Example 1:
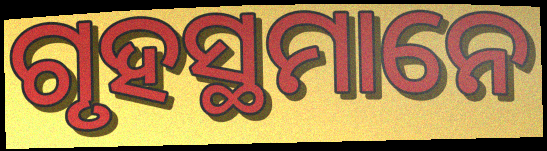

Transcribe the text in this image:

ଗୃହସ୍ଥମାନେ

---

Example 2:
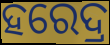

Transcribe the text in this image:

ହରେଦ୍ର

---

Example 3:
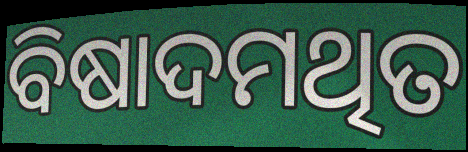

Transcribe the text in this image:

ବିଷାଦମଥିତ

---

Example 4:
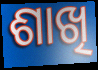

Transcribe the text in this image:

ଶାଖି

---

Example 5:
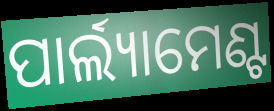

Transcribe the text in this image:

ପାର୍ଲ୍ୟାମେଣ୍ଟ